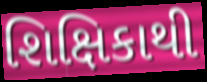
શિક્ષિકાથી